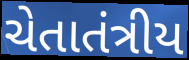
ચેતાતંત્રીય